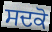
ਸਦਕੋ